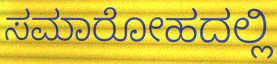
ಸಮಾರೋಹದಲ್ಲಿ